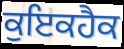
ਕੁਇਕਹੈਕ